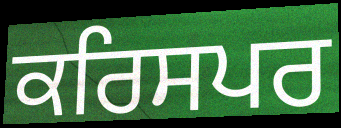
ਕਰਿਸਪਰ